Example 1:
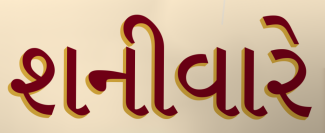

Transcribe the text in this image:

શનીવારે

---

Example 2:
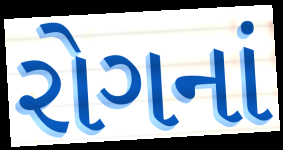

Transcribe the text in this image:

રોગનાં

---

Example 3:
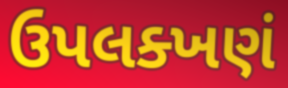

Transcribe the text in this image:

ઉપલક્ખણં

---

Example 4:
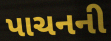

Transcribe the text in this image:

પાચનની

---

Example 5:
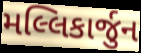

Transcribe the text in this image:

મલ્લિકાર્જુન